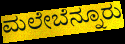
ಮಲೇಬೆನ್ನೂರು